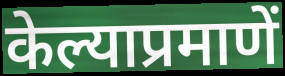
केल्याप्रमाणें